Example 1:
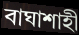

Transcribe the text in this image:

বাঘাশাহী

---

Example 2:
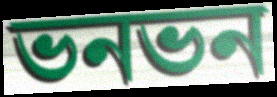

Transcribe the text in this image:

ভনভন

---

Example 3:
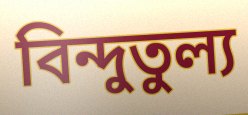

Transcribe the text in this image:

বিন্দুতুল্য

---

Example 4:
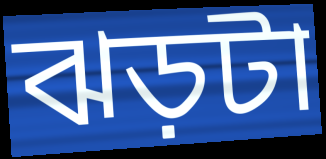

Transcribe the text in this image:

ঝড়টা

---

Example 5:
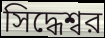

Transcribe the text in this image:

সিদ্ধেশ্বর